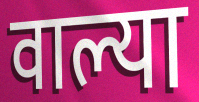
वाल्या